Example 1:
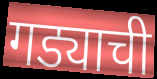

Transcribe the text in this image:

गड्याची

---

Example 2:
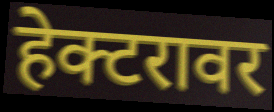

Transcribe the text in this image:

हेक्टरावर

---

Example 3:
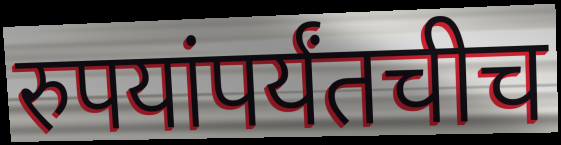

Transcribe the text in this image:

रुपयांपर्यंतचीच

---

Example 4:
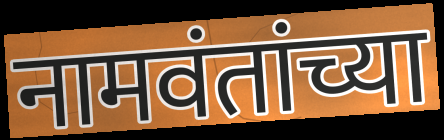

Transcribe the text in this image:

नामवंतांच्या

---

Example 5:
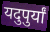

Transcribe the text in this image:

यदुपुर्यां